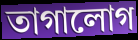
তাগালোগ